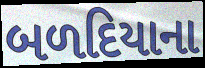
બળદિયાના